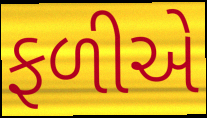
ફળીએ